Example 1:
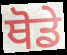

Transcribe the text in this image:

ਥੋਡੇ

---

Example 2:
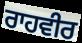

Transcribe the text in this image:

ਰਾਹਵੀਰ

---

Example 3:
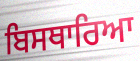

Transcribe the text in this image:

ਬਿਸਥਾਰਿਆ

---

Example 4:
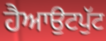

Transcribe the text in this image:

ਹੈਆਉਟਪੁੱਟ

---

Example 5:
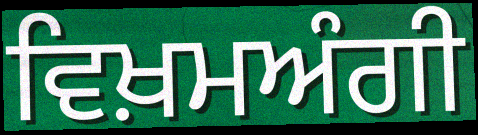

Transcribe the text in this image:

ਵਿਖ਼ਮਅੰਗੀ